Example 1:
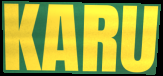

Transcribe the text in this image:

KARU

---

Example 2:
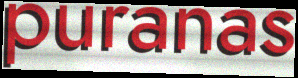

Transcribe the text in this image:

puranas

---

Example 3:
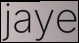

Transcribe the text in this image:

jaye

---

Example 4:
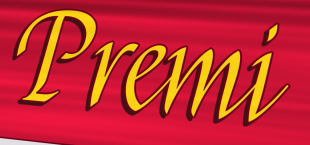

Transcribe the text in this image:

Premi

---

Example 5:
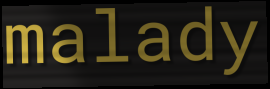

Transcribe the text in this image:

malady